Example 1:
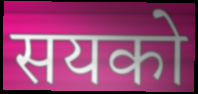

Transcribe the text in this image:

सयको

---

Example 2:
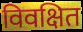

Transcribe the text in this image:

विवक्षित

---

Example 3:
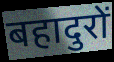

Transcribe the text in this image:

बहादुरों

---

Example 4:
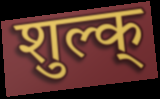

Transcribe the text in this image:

शुल्क्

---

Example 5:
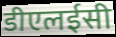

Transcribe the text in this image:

डीएलईसी